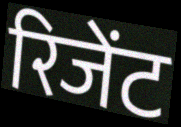
रिजेंट